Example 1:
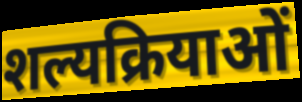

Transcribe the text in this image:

शल्यक्रियाओं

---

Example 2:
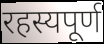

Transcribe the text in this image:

रहस्यपूर्ण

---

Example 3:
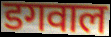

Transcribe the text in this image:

डगवाल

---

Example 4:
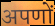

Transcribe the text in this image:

अपणों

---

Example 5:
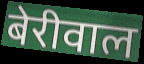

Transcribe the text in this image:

बेरीवाल